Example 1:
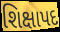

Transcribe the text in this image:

શિક્ષાપદ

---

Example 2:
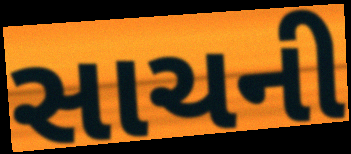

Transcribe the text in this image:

સાચની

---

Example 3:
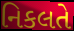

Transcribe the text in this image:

નિકલતે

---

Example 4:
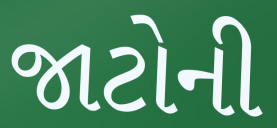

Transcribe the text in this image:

જાટોની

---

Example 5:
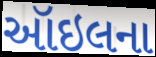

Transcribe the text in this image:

ઑઇલના